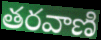
తరవాణి